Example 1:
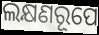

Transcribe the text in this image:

ଲକ୍ଷଣରୂପେ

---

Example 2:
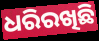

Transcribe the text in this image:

ଧରିରଖିଛି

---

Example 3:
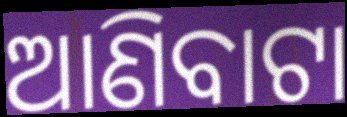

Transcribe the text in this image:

ଆଣିବାଟା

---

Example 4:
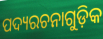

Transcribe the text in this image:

ପଦ୍ୟରଚନାଗୁଡ଼ିକ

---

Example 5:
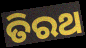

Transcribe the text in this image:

ତିରଥ